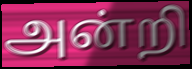
அன்றி